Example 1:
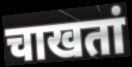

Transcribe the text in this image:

चाखतां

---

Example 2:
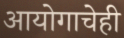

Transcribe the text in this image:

आयोगाचेही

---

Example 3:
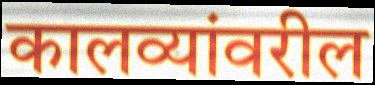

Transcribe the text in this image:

कालव्यांवरील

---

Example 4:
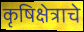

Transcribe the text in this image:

कृषिक्षेत्राचे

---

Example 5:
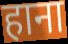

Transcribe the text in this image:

हाना